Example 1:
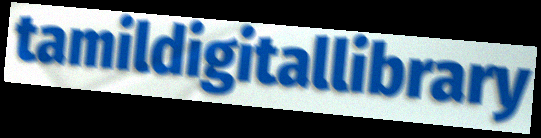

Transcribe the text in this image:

tamildigitallibrary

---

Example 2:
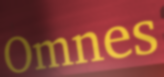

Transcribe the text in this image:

Omnes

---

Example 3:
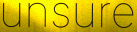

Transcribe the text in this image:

unsure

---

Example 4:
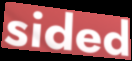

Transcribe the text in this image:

sided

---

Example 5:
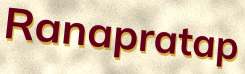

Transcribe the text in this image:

Ranapratap